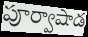
పూర్వాషాడ